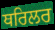
ਥਰਿਲਰ